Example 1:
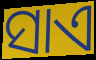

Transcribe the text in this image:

ସାଏ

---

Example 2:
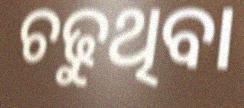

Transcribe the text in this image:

ଚଢୁଥିବା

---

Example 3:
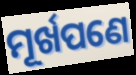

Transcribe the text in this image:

ମୂର୍ଖପଣେ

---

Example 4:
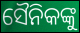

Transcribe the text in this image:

ସୈନିକଙ୍କୁ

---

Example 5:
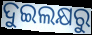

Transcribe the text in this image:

ଦୁଇଲକ୍ଷରୁ